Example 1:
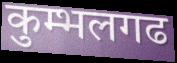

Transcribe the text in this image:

कुम्भलगढ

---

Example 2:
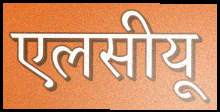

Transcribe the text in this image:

एलसीयू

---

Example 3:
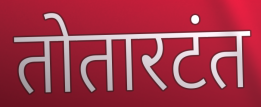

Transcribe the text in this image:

तोतारटंत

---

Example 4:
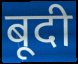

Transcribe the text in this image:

बूदी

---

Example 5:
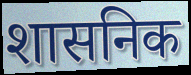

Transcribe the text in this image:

शासनिक